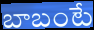
బాబంటే